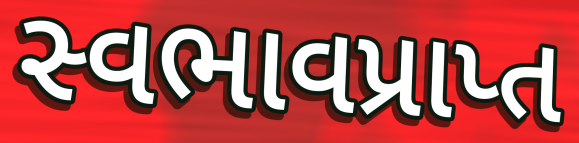
સ્વભાવપ્રાપ્ત